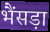
भैंसड़ा